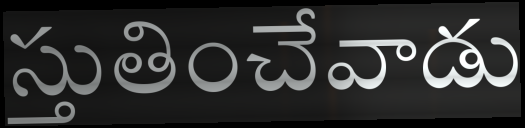
స్తుతించేవాడు